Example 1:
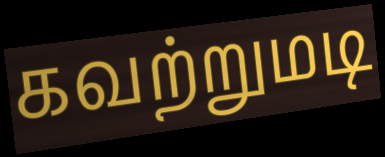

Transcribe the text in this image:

கவற்றுமடி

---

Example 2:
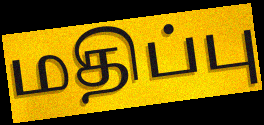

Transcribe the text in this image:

மதிப்பு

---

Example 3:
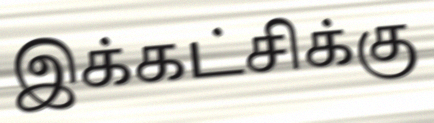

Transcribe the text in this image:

இக்கட்சிக்கு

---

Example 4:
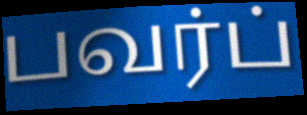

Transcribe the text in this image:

பவர்ப்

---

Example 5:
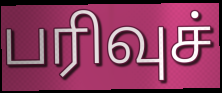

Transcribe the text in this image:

பரிவுச்